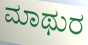
ಮಾಥುರ